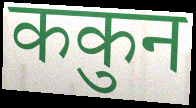
ककुन